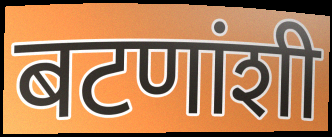
बटणांशी